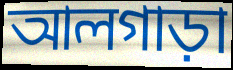
আলগাড়া